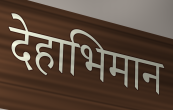
देहाभिमान